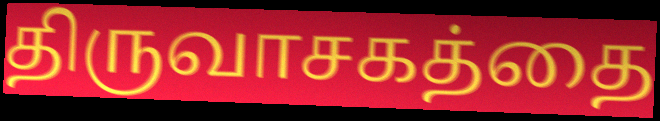
திருவாசகத்தை